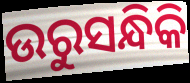
ଉରୁସନ୍ଧିକି